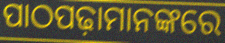
ପାଠପଢ଼ାମାନଙ୍କରେ